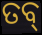
ତବ୍